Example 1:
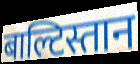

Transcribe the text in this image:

बाल्टिस्तान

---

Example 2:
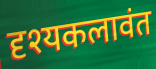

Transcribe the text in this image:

दृश्यकलावंत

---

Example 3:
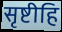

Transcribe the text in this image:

सृष्टीहि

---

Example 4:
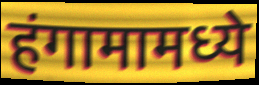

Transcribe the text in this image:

हंगामामध्ये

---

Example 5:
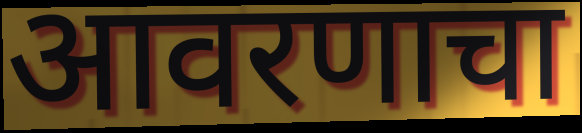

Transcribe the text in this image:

आवरणाचा